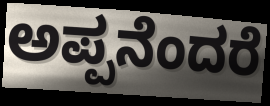
ಅಪ್ಪನೆಂದರೆ